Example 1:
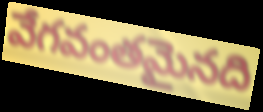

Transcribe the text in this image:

వేగవంతమైనది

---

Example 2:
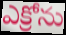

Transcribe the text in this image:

ఎక్రోను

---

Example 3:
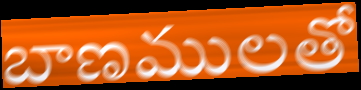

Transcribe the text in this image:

బాణములతో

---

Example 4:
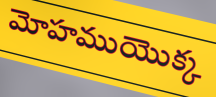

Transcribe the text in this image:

మోహముయొక్క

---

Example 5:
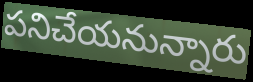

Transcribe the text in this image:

పనిచేయనున్నారు